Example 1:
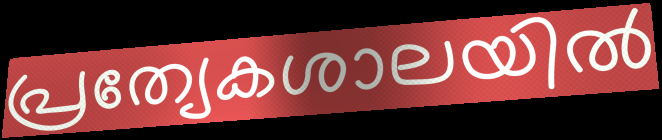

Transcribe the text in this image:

പ്രത്യേകശാലയിൽ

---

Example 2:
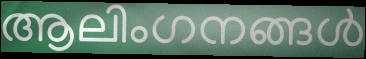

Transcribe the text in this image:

ആലിംഗനങ്ങൾ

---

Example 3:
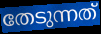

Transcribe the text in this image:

തേടുന്നത്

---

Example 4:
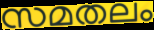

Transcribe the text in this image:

സമതലം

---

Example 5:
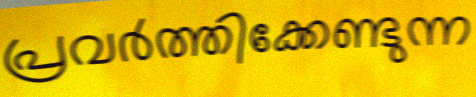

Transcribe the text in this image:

പ്രവർത്തിക്കേണ്ടുന്ന